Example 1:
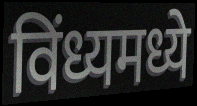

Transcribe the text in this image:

विंध्यमध्ये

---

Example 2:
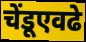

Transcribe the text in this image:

चेंडूएवढे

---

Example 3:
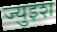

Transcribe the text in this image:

ज्युइश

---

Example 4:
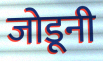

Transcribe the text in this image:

जोडूनी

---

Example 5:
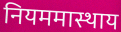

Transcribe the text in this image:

नियममास्थाय